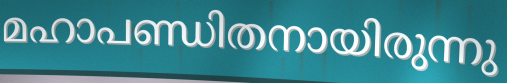
മഹാപണ്ഡിതനായിരുന്നു